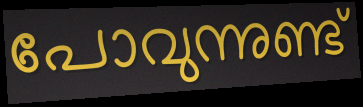
പോവുന്നുണ്ട്